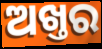
ଅଖ୍ତର